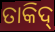
ତାକିଦ୍